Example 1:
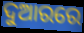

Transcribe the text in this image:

ଦୁଆରରେ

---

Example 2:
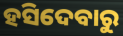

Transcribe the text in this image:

ହସିଦେବାରୁ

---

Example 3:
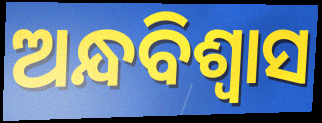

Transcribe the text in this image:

ଅନ୍ଧବିଶ୍ବାସ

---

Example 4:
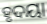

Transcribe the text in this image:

ହୃଦୟା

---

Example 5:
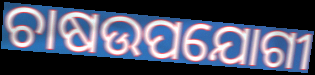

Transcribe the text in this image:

ଚାଷଉପଯୋଗୀ